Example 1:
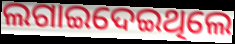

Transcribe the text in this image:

ଲଗାଇଦେଇଥିଲେ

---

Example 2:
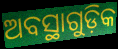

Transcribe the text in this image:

ଅବସ୍ଥାଗୁଡ଼ିକ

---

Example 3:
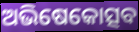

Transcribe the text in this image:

ଅଭିଷେକୋତ୍ସବ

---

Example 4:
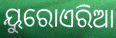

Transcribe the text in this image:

ୟୁରୋଏରିଆ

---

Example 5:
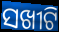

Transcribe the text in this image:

ସଖୀଟି